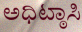
ಅಧಿಟ್ಠಾಸಿ